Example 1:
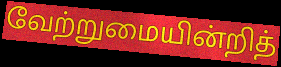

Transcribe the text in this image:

வேற்றுமையின்றித்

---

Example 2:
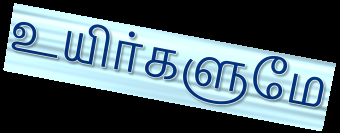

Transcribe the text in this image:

உயிர்களுமே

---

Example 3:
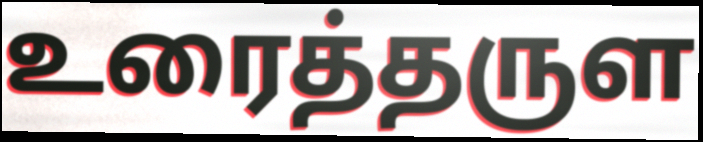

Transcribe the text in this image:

உரைத்தருள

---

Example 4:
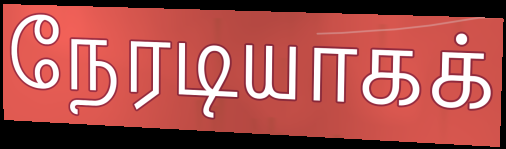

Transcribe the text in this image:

நேரடியாகக்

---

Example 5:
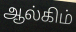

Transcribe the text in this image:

ஆல்கிம்